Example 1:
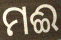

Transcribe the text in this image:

ମଈ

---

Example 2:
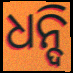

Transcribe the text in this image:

ଧନ୍ଦି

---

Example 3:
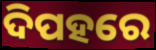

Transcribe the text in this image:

ଦିପହରେ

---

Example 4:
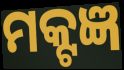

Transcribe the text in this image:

ମକ୍ଟଜ୍ଞ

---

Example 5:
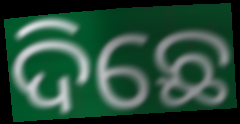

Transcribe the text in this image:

ଦିଛେ